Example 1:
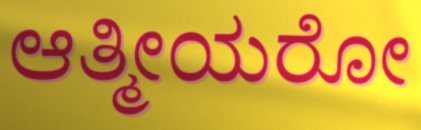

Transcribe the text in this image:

ಆತ್ಮೀಯರೋ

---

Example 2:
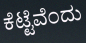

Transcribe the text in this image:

ಕೆಟ್ಟೆವೆಂದು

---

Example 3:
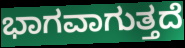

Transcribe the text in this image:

ಭಾಗವಾಗುತ್ತದೆ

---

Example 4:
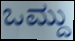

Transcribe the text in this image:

ಒಮ್ದು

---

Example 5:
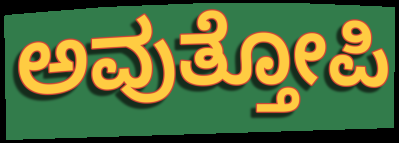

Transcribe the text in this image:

ಅವುತ್ತೋಪಿ